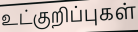
உட்குறிப்புகள்